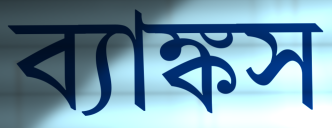
ব্যাঙ্কস